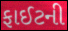
ફાઈટની